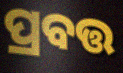
ପ୍ରବତ୍ତ